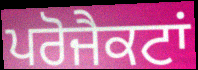
ਪਰੋਜੈਕਟਾਂ